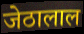
जेठालाल